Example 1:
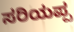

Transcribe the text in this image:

ಸರಿಯಪ್ಪ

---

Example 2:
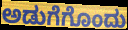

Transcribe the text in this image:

ಅಡುಗೆಗೊಂದು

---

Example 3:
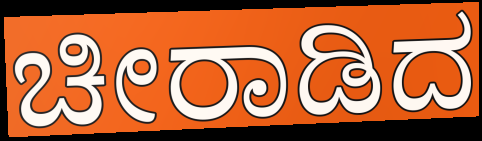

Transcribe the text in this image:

ಚೀರಾಡಿದ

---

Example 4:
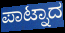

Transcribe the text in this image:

ಪಾಟ್ನಾದ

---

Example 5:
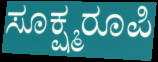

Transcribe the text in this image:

ಸೂಕ್ಷ್ಮರೂಪಿ